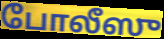
போலீஸு